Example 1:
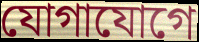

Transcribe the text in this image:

যোগাযোগে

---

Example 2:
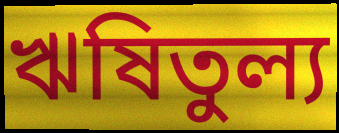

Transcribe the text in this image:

ঋষিতুল্য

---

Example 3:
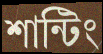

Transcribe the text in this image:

শান্টিং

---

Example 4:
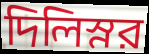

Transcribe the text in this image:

দিলিস্নর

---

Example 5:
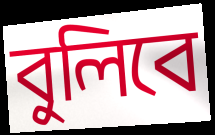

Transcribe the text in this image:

বুলিবে